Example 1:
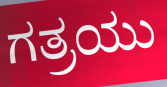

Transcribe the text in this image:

ಗತ್ರಯು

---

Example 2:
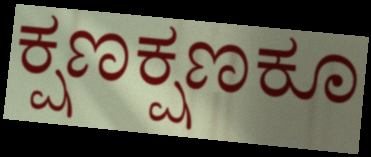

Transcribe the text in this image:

ಕ್ಷಣಕ್ಷಣಕೂ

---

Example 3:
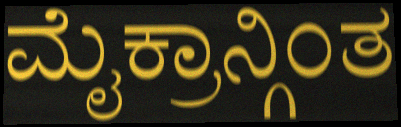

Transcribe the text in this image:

ಮೈಕ್ರಾನ್ಗಿಂತ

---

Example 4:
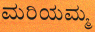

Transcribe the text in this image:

ಮರಿಯಮ್ಮ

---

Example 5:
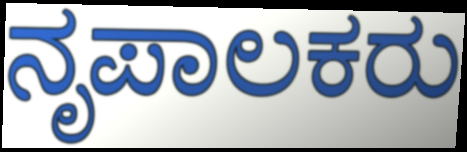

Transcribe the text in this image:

ನೃಪಾಲಕರು